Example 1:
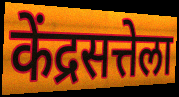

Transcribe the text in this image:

केंद्रसत्तेला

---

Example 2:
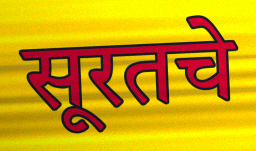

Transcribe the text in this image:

सूरतचे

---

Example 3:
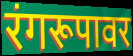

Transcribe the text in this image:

रंगरूपावर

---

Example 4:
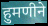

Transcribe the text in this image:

हुमणीने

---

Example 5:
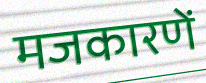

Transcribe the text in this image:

मजकारणें